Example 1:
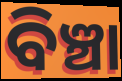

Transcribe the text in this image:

ବିଞ୍ଚା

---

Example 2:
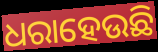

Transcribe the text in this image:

ଧରାହେଉଛି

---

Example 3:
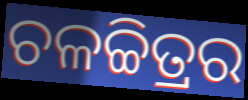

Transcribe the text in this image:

ଚଳଚ୍ଚିତ୍ରର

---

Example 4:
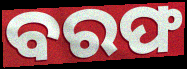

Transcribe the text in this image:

ବରଫ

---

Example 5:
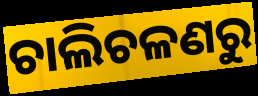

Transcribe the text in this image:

ଚାଲିଚଳଣରୁ